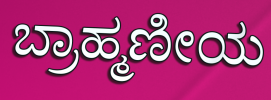
ಬ್ರಾಹ್ಮಣೀಯ